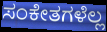
ಸಂಕೇತಗಳೆಲ್ಲ